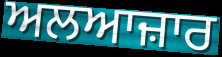
ਅਲਆਜ਼ਾਰ